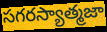
సగరస్యాత్మజా